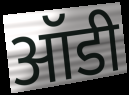
ऑडी